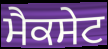
ਮੈਕਸੇਟ